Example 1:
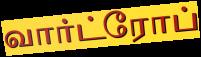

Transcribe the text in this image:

வார்ட்ரோப்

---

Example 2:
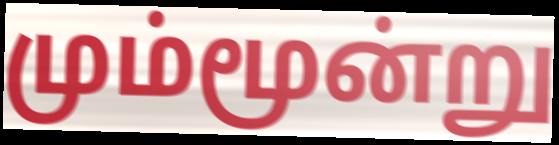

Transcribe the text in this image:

மும்மூன்று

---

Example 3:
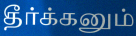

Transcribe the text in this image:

தீர்க்கனும்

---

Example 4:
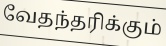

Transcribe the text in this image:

வேதந்தரிக்கும்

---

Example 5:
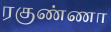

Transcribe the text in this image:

ரகுண்ணா